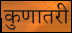
कुणातरी